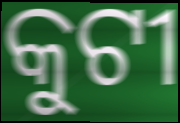
କୁଟୀ